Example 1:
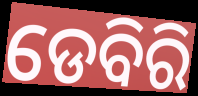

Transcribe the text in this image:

ଡେବିରି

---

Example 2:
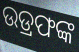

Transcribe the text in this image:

ଉଡ୍ରଫଙ୍କ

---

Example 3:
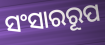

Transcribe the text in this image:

ସଂସାରରୂପ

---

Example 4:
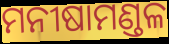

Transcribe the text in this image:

ମନୀଷାମଣ୍ଡଳ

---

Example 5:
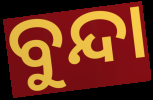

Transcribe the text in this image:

ବୁନ୍ଦା